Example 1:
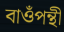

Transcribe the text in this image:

বাওঁপন্থী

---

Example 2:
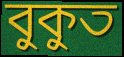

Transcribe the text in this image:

বুকুত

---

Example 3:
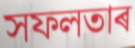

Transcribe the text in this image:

সফলতাৰ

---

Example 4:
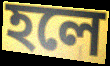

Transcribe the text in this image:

হলে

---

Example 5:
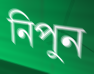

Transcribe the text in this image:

নিপুন